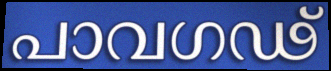
പാവഗഢ്